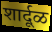
शार्दूळ